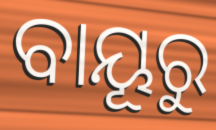
ବାୟୂରୁ